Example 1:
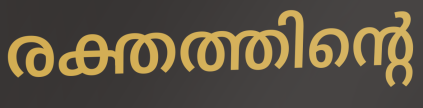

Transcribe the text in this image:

രക്തത്തിന്റെ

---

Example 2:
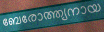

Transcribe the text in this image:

ബേരോത്ത്യനായ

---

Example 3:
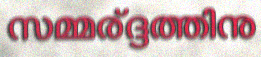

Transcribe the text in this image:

സമ്മര്ദ്ദത്തിനു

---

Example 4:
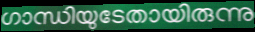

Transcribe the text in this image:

ഗാന്ധിയുടേതായിരുന്നു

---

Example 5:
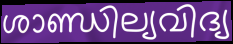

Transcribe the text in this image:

ശാണ്ഡില്യവിദ്യ